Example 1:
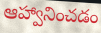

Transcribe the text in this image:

ఆహ్వానించడం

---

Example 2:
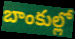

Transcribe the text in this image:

బాంకుల్లో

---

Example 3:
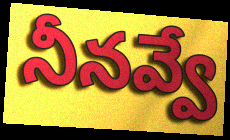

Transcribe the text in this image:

నీనవ్వే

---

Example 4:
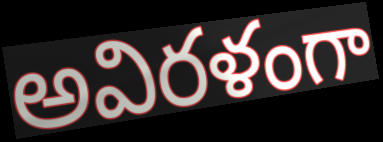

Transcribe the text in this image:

అవిరళంగా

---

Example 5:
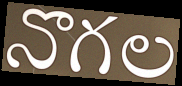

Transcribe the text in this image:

నొగల